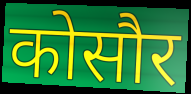
कोसौर